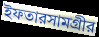
ইফতারসামগ্রীর